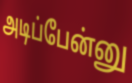
அடிப்பேன்னு